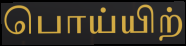
பொய்யிற்